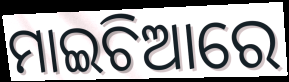
ମାଇଚିଆରେ